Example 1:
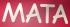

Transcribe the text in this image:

MATA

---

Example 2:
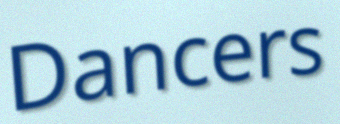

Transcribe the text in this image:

Dancers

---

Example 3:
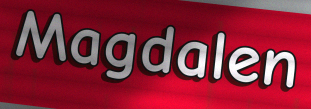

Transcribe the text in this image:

Magdalen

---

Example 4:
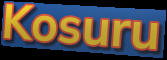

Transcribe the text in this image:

Kosuru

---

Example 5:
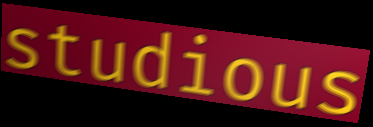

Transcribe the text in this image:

studious